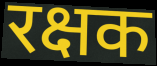
रक्षक